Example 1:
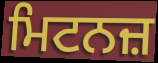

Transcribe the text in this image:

ਮਿਟਨਜ਼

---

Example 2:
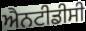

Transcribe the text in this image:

ਐਨਟੀਡੀਸੀ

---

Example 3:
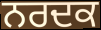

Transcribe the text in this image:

ਨਰਦਕ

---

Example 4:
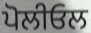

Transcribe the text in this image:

ਪੋਲੀਓਲ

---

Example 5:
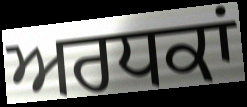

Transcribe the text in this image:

ਅਰਧਕਾਂ